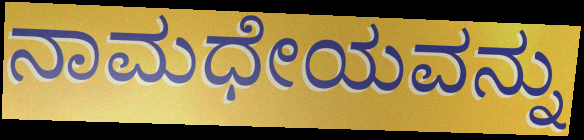
ನಾಮಧೇಯವನ್ನು